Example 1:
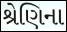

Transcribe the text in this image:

શ્રેણિના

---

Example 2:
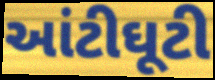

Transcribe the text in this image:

આંટીઘૂટી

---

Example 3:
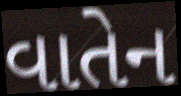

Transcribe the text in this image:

વાતેન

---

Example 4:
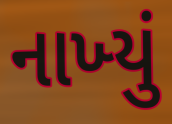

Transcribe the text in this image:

નાખ્‍યું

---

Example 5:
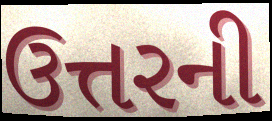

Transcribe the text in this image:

ઉત્તરની